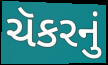
ચૅકરનું